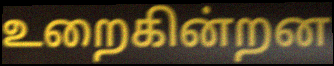
உறைகின்றன